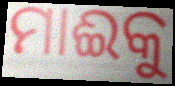
ମାଈକୁ